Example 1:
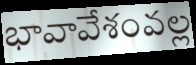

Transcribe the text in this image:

భావావేశంవల్ల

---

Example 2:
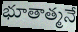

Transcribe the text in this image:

భూతాత్మనే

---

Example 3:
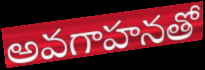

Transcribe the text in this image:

అవగాహనతో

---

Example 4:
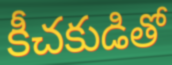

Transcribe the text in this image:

కీచకుడితో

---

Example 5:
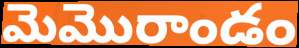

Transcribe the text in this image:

మెమొరాండం